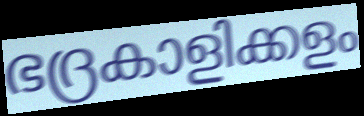
ഭദ്രകാളിക്കളം